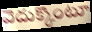
వెదుక్కొంటూ